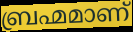
ബ്രഹ്മമാണ്